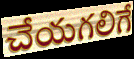
చేయగలిగే